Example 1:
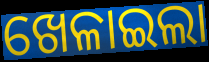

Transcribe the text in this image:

ଖେଳାଇଲା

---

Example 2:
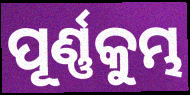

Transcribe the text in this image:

ପୂର୍ଣ୍ଣକୁମ୍ଭ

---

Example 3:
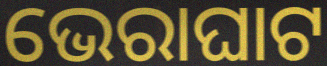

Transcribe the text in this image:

ଭେରାଘାଟ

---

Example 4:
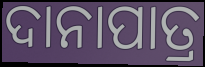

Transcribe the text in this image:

ଦାନାପାତ୍ର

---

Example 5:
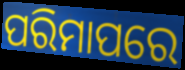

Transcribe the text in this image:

ପରିମାପରେ